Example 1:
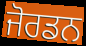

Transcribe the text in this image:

ਜੋਰਡਨ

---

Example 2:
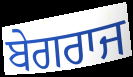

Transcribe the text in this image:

ਬੇਗਰਾਜ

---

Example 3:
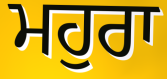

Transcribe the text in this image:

ਮਹੁਰਾ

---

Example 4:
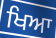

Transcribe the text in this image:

ਖਿਆ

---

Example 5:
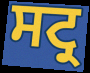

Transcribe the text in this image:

ਸਟ੍ਰ